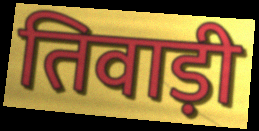
तिवाड़ी